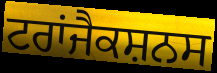
ਟਰਾਂਜੈਕਸ਼ਨਸ